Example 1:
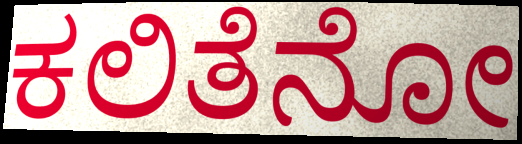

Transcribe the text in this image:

ಕಲಿತೆನೋ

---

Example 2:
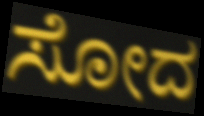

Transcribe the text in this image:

ಸೋದ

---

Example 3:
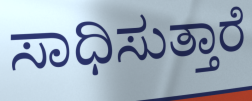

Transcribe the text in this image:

ಸಾಧಿಸುತ್ತಾರೆ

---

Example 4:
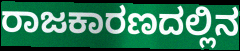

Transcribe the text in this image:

ರಾಜಕಾರಣದಲ್ಲಿನ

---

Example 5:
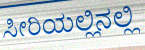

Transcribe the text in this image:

ಸೀರಿಯಲ್ಲಿನಲ್ಲಿ